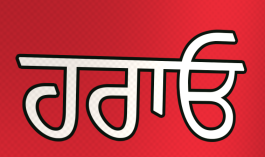
ਹਰਾਓ